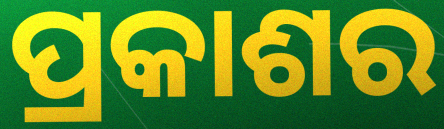
ପ୍ରକାଶର